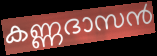
കണ്ണദാസൻ